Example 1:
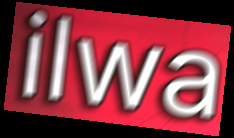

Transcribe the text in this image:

ilwa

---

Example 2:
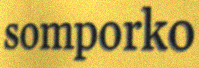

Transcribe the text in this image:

somporko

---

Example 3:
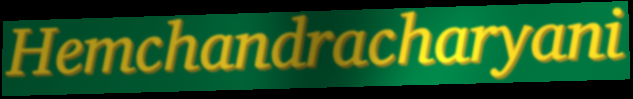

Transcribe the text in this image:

Hemchandracharyani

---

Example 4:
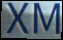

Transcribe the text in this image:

XM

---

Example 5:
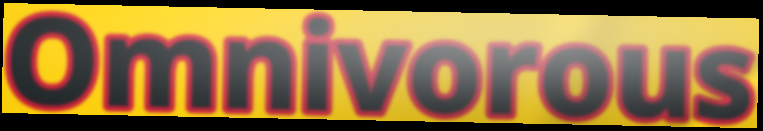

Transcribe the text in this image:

Omnivorous